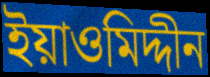
ইয়াওমিদ্দীন